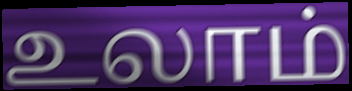
உலாம்